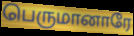
பெருமானாரே